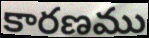
కారణము